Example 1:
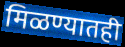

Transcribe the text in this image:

मिळण्यातही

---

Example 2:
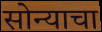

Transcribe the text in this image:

सोन्याचा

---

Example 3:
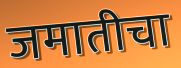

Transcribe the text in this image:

जमातीचा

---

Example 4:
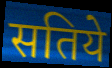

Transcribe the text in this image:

सतिये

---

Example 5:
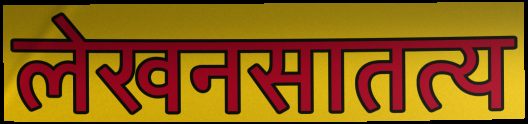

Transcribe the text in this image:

लेखनसातत्य